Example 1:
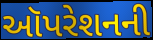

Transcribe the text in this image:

ઑપરેશનની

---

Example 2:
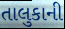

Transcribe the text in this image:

તાલુકાની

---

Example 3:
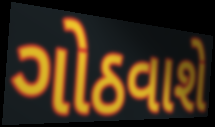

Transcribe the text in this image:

ગોઠવાશે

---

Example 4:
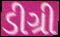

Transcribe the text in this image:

ડીગ્રી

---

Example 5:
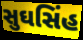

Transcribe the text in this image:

સુઘસિંહ